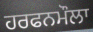
ਹਰਫਨਮੌਲਾ